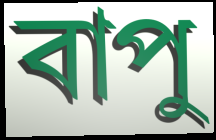
বাপু